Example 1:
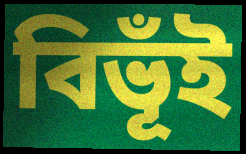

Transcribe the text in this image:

বিভূঁই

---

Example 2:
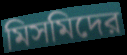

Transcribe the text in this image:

মিসমিদের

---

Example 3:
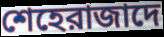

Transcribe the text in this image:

শেহেরাজাদে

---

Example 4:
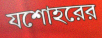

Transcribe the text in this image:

যশোহরের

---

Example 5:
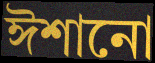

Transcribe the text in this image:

ঈশানো